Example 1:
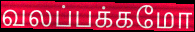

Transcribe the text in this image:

வலப்பக்கமோ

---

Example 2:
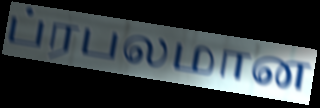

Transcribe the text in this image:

ப்ரபலமான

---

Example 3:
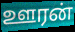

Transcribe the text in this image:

ஊரன்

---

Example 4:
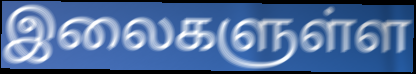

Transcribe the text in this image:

இலைகளுள்ள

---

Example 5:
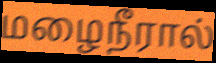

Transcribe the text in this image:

மழைநீரால்